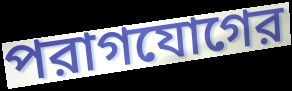
পরাগযোগের